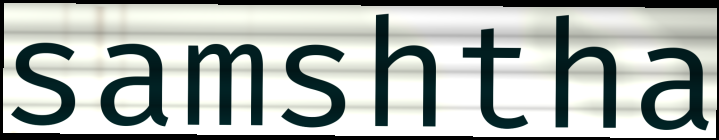
samshtha